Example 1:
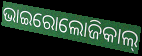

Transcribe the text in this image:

ଭାଇରୋଲୋଜିକାଲ୍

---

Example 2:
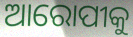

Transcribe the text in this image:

ଆରୋପୀକୁ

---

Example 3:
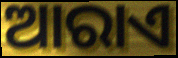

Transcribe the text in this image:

ଆରାଏ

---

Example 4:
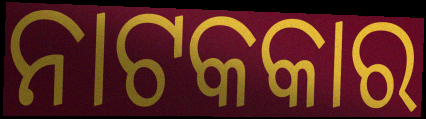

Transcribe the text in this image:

ନାଟକକାର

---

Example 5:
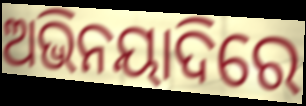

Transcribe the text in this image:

ଅଭିନୟାଦିରେ